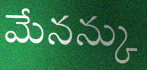
మేనన్కు